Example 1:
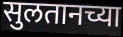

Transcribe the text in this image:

सुलतानच्या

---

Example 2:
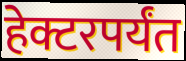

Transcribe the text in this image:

हेक्टरपर्यंत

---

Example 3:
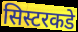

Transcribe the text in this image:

सिस्टरकडे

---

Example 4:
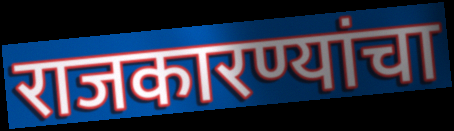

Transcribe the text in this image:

राजकारण्यांचा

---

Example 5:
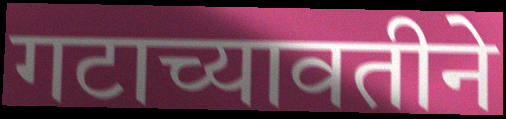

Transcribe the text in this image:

गटाच्यावतीने